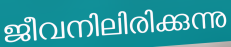
ജീവനിലിരിക്കുന്നു